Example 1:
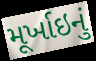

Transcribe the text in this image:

મૂર્ખાઇનું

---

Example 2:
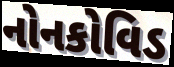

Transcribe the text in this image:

નોનકોવિડ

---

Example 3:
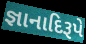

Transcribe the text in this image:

જ્ઞાનાદિરૂપે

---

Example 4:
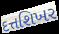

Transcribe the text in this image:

દત્તશિખર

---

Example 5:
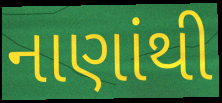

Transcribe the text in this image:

નાણાંથી